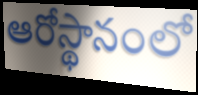
ఆరోస్థానంలో